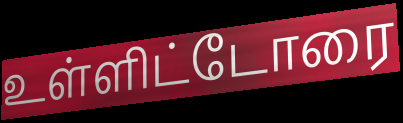
உள்ளிட்டோரை